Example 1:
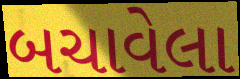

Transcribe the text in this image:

બચાવેલા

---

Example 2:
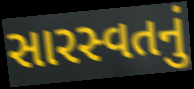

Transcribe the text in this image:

સારસ્વતનું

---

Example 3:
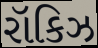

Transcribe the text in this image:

રૉકિઝ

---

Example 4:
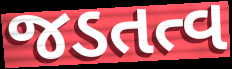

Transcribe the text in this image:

જડતત્વ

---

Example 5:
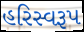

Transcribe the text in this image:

હરિસ્વરૂપ